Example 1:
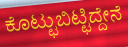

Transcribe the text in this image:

ಕೊಟ್ಟುಬಿಟ್ಟಿದ್ದೇನೆ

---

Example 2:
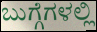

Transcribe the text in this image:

ಬುಗ್ಗೆಗಳಲ್ಲಿ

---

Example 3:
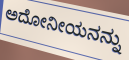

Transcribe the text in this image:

ಅದೋನೀಯನನ್ನು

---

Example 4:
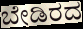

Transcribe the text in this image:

ಬೇಡಿರದ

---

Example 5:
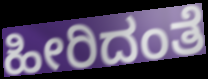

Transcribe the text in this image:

ಹೀರಿದಂತೆ